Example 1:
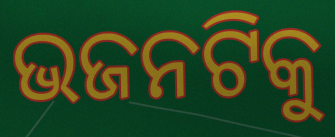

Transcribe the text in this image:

ଭଜନଟିକୁ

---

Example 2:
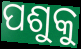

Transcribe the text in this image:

ପଶୁକୁ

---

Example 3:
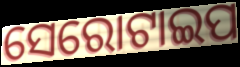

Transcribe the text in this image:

ସେରୋଟାଇପ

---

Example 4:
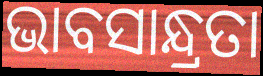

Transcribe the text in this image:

ଭାବସାନ୍ଧ୍ରତା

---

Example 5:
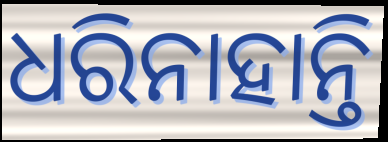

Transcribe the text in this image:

ଧରିନାହାନ୍ତି